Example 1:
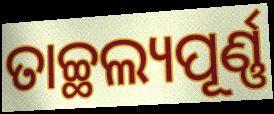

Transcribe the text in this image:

ତାଚ୍ଛଲ୍ୟପୂର୍ଣ୍ଣ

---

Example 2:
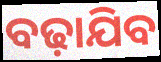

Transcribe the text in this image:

ବଢ଼ାଯିବ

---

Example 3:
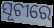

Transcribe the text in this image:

ସୂଚୀରେ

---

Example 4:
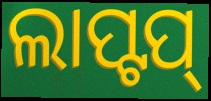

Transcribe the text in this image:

ଲାପ୍ଟପ୍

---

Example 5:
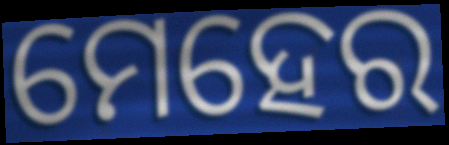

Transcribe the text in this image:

ମେହେର